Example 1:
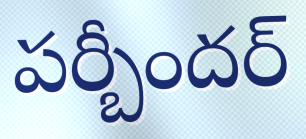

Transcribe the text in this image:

పర్బీందర్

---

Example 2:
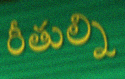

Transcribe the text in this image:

రీతుల్ని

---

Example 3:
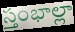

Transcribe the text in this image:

స్తంభాల్లా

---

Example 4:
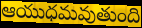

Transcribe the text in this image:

ఆయుధమవుతుంది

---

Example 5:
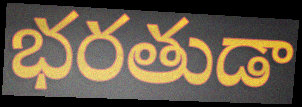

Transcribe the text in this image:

భరతుడా